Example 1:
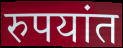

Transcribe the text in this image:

रुपयांत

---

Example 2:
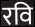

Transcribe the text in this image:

रवि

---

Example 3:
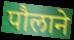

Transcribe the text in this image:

पौलाने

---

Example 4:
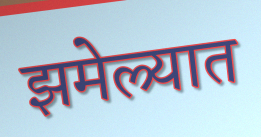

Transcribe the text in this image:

झमेल्यात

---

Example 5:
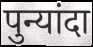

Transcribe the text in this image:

पुन्यांदा